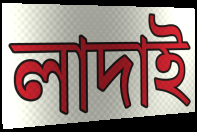
লাদাই